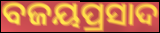
ବଜୟପ୍ରସାଦ